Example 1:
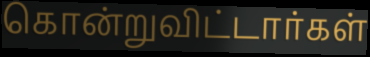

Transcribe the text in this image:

கொன்றுவிட்டார்கள்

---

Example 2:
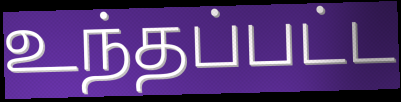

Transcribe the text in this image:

உந்தப்பட்ட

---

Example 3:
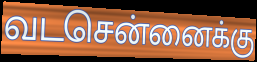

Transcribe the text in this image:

வடசென்னைக்கு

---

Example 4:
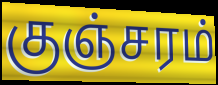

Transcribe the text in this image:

குஞ்சரம்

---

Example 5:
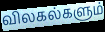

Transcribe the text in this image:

விலகல்களும்